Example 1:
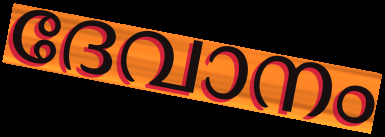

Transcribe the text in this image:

ദേവാനം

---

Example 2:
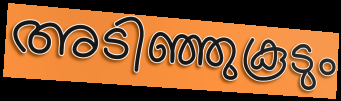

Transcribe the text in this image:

അടിഞ്ഞുകൂടും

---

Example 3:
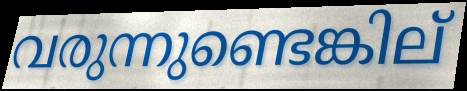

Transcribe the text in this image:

വരുന്നുണ്ടെങ്കില്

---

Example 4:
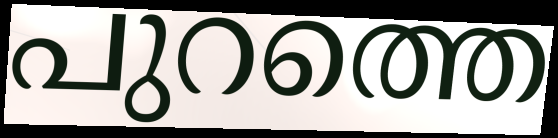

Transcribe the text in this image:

പുറത്തെ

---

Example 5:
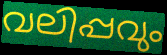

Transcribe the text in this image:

വലിപ്പവും